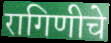
रागिणीचे